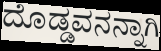
ದೊಡ್ಡವನನ್ನಾಗಿ